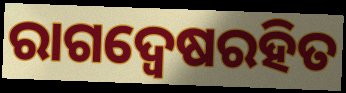
ରାଗଦ୍ୱେଷରହିତ